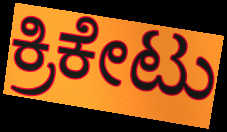
ಕ್ರಿಕೇಟು